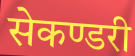
सेकण्‍डरी